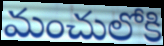
మంచులోకి